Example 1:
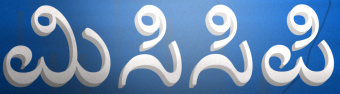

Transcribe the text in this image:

ಮಿಸಿಸಿಪಿ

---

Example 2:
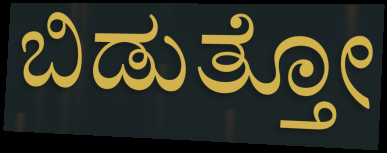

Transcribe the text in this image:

ಬಿಡುತ್ತೋ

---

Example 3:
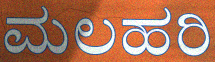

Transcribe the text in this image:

ಮಲಹರಿ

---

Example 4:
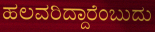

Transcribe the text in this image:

ಹಲವರಿದ್ದಾರೆಂಬುದು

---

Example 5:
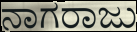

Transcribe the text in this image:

ನಾಗರಾಜು